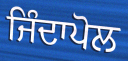
ਜਿੰਦਾਪੋਲ